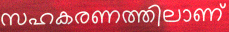
സഹകരണത്തിലാണ്